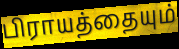
பிராயத்தையும்